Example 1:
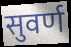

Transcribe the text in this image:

सुवर्ण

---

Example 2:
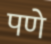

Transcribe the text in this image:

पणे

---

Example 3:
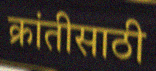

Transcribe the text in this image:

क्रांतीसाठी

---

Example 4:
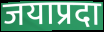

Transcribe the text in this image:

जयाप्रदा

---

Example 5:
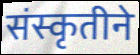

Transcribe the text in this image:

संस्कृतीने